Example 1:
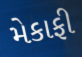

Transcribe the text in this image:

મેકાફી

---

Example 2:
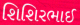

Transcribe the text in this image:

શિશિરભાઈ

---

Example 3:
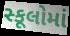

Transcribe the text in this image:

સ્કૂલોમાં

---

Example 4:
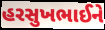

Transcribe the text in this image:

હરસુખભાઈને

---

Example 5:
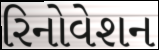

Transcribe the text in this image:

રિનોવેશન